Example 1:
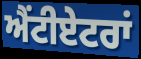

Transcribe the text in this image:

ਐਂਟੀਏਟਰਾਂ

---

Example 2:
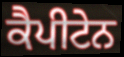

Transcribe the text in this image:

ਕੈਪੀਟੇਨ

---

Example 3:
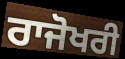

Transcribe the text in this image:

ਰਾਜੋਖਰੀ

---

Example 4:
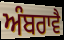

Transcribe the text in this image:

ਅੰਬਰਾਵੈ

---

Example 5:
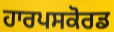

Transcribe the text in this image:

ਹਾਰਪਸਕੋਰਡ